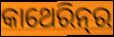
କାଥେରିନ୍‌ର